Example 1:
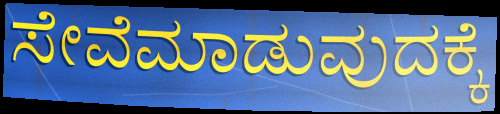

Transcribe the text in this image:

ಸೇವೆಮಾಡುವುದಕ್ಕೆ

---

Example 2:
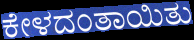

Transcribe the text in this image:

ಕೇಳದಂತಾಯಿತು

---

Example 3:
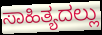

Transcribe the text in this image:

ಸಾಹಿತ್ಯದಲ್ಲು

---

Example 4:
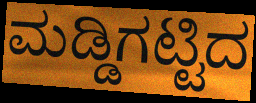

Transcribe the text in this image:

ಮಡ್ಡಿಗಟ್ಟಿದ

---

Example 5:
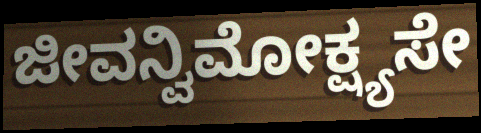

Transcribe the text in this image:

ಜೀವನ್ವಿಮೋಕ್ಷ್ಯಸೇ